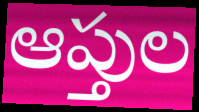
ఆప్తుల